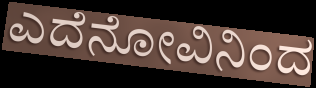
ಎದೆನೋವಿನಿಂದ